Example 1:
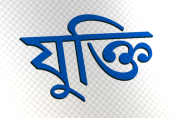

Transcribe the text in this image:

যুক্তি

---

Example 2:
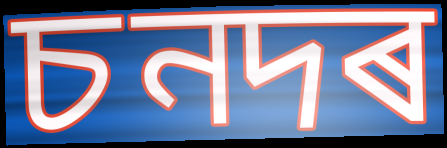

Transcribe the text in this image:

চনদৰ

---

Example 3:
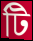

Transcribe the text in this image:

টি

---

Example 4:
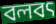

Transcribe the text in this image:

বলবৎ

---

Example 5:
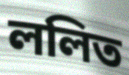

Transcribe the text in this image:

ললিত